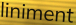
liniment